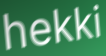
hekki